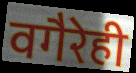
वगैरेही